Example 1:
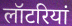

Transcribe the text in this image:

लॉटरियां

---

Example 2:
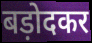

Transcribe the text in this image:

बड़ोदकर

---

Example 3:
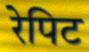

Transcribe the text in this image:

रेपिट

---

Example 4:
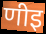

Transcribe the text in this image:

णीइ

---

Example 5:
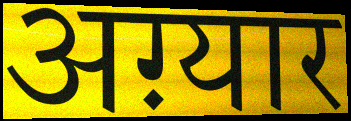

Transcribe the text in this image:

अग़्यार